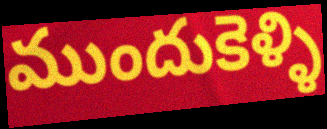
ముందుకెళ్ళి